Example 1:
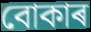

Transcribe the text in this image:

বোকাৰ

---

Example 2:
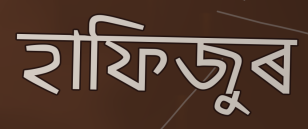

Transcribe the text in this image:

হাফিজুৰ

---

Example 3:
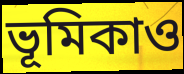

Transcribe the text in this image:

ভূমিকাও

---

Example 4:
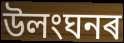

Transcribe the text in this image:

উলংঘনৰ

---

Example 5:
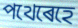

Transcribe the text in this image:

পথেৰেহে